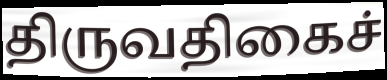
திருவதிகைச்